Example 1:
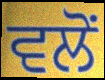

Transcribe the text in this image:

ਵਲੋਂ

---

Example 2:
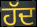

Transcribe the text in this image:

ਹੱਦ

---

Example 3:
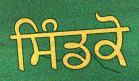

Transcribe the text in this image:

ਸਿੰਡਕੋ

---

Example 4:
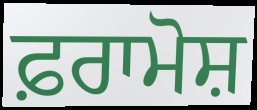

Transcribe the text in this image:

ਫ਼ਰਾਮੋਸ਼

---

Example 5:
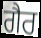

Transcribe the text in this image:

ਗੈਰ